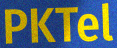
PKTel